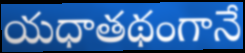
యధాతథంగానే